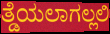
ತ್ಡೆಯಲಾಗಲ್ಲಲಿ